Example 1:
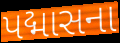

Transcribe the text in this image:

પદ્માસના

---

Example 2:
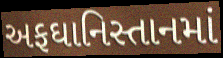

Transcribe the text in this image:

અફઘાનિસ્તાનમાં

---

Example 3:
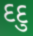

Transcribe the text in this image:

દદુ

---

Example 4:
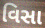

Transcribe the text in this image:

વિસા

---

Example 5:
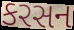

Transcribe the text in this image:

કરસન